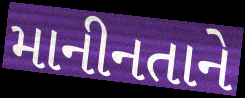
માનીનતાને